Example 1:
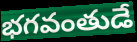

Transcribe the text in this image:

భగవంతుడే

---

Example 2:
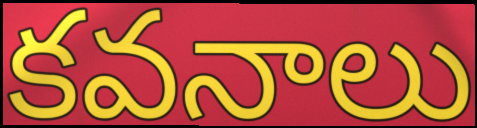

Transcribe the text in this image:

కవనాలు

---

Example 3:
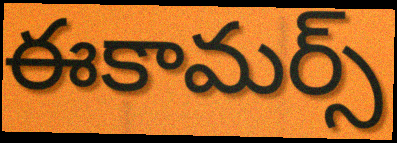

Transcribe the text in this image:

ఈకామర్స్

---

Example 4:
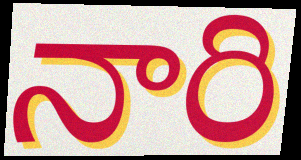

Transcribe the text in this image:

నారి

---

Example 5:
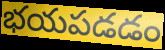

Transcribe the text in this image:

భయపడడం